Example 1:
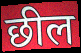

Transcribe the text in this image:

छील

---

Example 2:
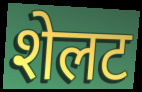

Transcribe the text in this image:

शेलट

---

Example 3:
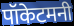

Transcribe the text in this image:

पॉकेटमनी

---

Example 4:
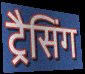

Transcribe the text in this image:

ट्रैसिंग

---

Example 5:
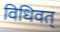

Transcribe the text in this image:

विधिवत्